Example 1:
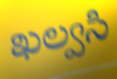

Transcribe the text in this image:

ఖల్వసి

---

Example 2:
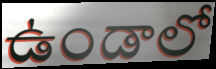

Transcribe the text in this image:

ఉండాలో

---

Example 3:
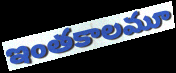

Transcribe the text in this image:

ఇంతకాలమూ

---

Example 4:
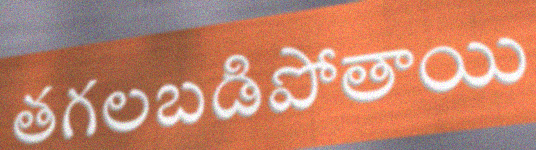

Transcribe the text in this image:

తగలబడిపోతాయి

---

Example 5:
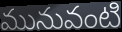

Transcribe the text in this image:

మునువంటి